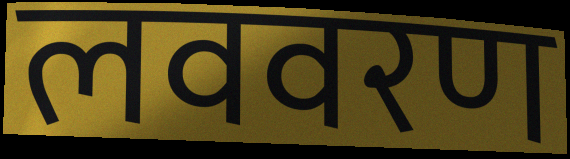
लववरण